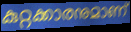
കുറ്റക്കാരനുമാണ്